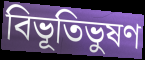
বিভূতিভুষণ